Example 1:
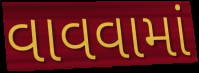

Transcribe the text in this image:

વાવવામાં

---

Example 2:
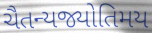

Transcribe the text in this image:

ચૈતન્યજ્યોતિમય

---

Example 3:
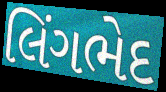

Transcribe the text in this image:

લિંગભેદ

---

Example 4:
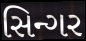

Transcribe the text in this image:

સિન્ગર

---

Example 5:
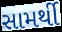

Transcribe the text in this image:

સામર્થી